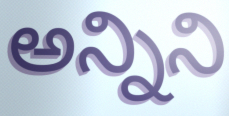
అన్నిని